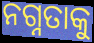
ନଗ୍ନତାକୁ